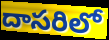
దాసరిలో